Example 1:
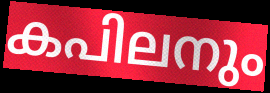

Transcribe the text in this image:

കപിലനും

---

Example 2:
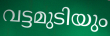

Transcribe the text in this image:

വട്ടമുടിയും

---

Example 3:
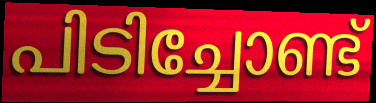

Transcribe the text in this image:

പിടിച്ചോണ്ട്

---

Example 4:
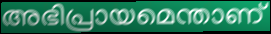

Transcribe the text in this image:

അഭിപ്രായമെന്താണ്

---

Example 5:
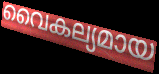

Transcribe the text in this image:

വൈകല്യമായ